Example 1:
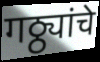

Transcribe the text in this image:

गठ्ठ्यांचे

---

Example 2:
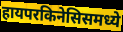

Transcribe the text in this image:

हायपरकिनेसिसमध्ये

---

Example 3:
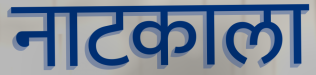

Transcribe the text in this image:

नाटकाला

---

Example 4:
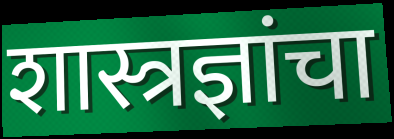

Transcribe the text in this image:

शास्त्रज्ञांचा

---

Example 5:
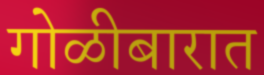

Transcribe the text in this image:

गोळीबारात